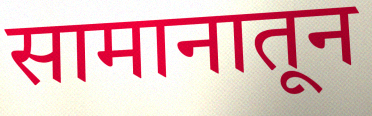
सामानातून